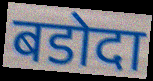
बडोदा